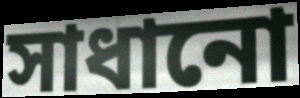
সাধানো